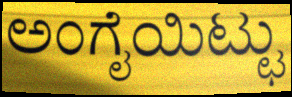
ಅಂಗೈಯಿಟ್ಟು